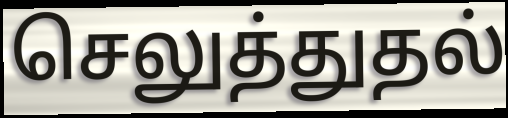
செலுத்துதல்